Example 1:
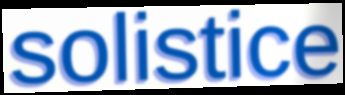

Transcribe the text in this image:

solistice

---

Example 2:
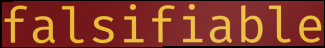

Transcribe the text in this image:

falsifiable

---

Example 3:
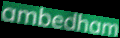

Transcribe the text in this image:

ambedham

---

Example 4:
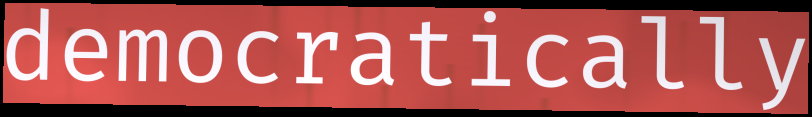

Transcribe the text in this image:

democratically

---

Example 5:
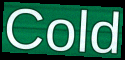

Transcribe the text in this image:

Cold